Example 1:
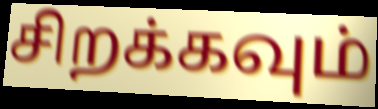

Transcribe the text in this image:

சிறக்கவும்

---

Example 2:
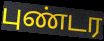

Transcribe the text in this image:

புண்டர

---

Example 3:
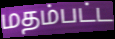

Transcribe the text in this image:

மதம்பட்ட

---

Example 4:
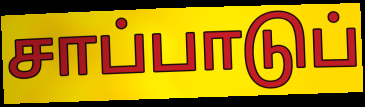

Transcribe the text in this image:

சாப்பாடுப்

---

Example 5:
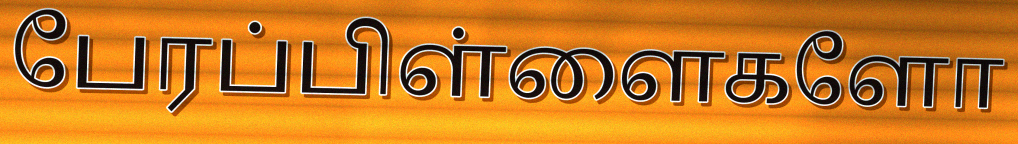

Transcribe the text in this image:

பேரப்பிள்ளைகளோ